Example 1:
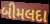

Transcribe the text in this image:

બીમલદા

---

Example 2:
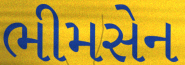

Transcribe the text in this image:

ભીમસેન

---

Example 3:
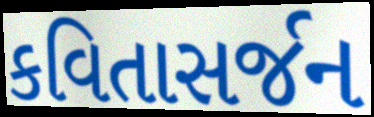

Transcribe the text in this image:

કવિતાસર્જન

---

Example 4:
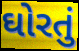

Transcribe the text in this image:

ઘોરતું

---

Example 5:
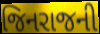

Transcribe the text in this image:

જિનરાજની